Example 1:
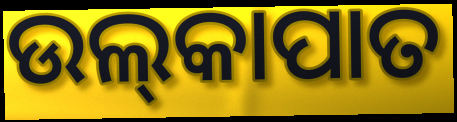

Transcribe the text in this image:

ଉଲ୍‍କାପାତ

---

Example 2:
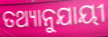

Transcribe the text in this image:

ତଥ୍ୟାନୁଯାୟୀ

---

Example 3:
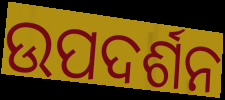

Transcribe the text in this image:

ଉପଦର୍ଶନ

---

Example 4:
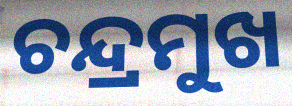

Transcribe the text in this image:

ଚନ୍ଦ୍ରମୁଖ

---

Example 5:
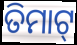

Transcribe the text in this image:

ତିମାଟ୍